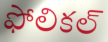
ఫోలికల్